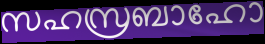
സഹസ്രബാഹോ